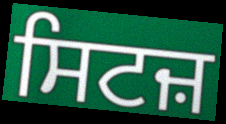
ਸਿਟਜ਼